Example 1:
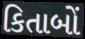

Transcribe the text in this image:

કિતાબોં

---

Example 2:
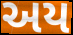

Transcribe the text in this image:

અય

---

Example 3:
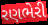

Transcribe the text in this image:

રણભેરી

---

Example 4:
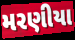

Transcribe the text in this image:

મરણીયા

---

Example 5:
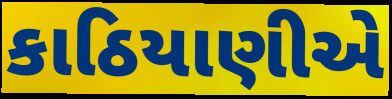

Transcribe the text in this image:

કાઠિયાણીએ